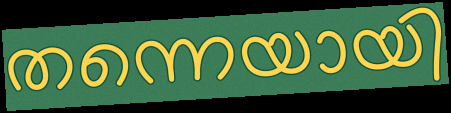
തന്നെയായി